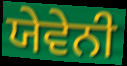
ਯੇਵੇਨੀ